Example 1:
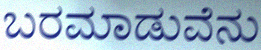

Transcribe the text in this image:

ಬರಮಾಡುವೆನು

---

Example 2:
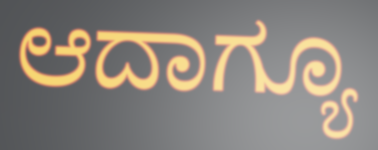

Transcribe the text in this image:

ಆದಾಗ್ಯೂ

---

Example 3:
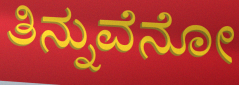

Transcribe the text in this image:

ತಿನ್ನುವೆನೋ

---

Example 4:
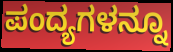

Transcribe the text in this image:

ಪಂದ್ಯಗಳನ್ನೂ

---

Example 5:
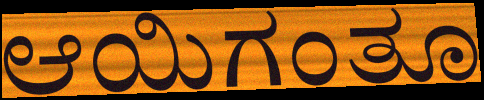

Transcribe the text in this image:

ಆಯಿಗಂತೂ